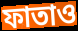
ফাতাও